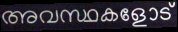
അവസ്ഥകളോട്